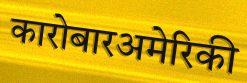
कारोबारअमेरिकी